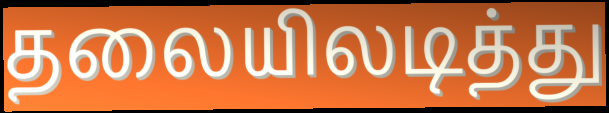
தலையிலடித்து